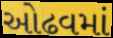
ઓઢવમાં